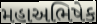
મહાઅભિષેક